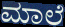
ಮಾಲೆ